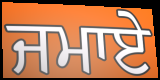
ਜਮਾਏ